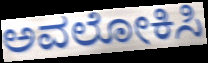
ಅವಲೋಕಿಸಿ